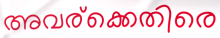
അവര്ക്കെതിരെ